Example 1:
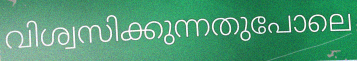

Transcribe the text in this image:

വിശ്വസിക്കുന്നതുപോലെ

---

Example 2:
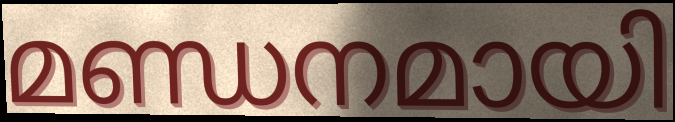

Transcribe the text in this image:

മണ്ഡനമായി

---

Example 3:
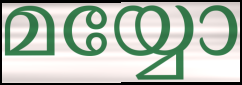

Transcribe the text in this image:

മയ്യോ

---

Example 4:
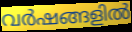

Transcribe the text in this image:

വർഷങ്ങളിൽ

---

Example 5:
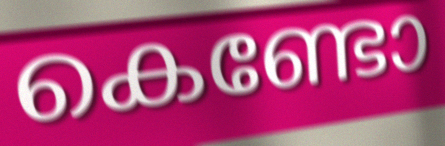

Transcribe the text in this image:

കെണ്ടോ